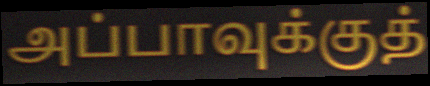
அப்பாவுக்குத்